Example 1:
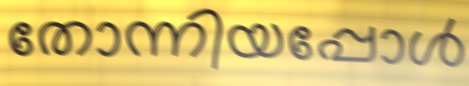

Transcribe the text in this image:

തോന്നിയപ്പോൾ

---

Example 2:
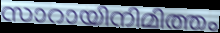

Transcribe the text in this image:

സാറായിനിമിത്തം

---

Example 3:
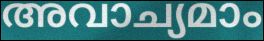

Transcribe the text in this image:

അവാച്യമാം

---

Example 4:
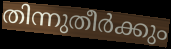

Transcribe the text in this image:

തിന്നുതീർക്കും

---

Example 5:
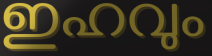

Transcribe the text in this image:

ഇഹവും